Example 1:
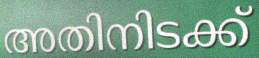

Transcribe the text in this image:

അതിനിടക്ക്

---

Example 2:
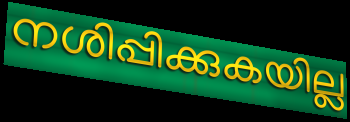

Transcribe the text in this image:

നശിപ്പിക്കുകയില്ല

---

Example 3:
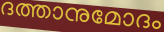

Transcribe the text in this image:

ദത്താനുമോദം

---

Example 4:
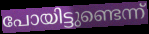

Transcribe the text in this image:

പോയിട്ടുണ്ടെന്ന്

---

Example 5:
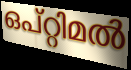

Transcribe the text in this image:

ഒപ്റ്റിമൽ